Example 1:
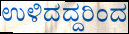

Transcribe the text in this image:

ಉಳಿದದ್ದರಿಂದ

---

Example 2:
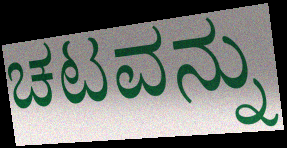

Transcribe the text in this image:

ಚಟವನ್ನು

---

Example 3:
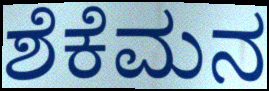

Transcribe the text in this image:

ಶೆಕೆಮನ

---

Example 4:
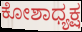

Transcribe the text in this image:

ಕೋಶಾಧ್ಯಕ್ಷ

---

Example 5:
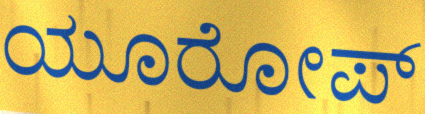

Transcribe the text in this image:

ಯೂರೋಪ್